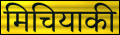
मिचियाकी